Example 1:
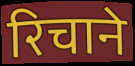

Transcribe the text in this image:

रिचाने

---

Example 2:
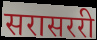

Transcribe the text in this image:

सरासररी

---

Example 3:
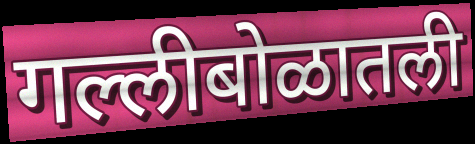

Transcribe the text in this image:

गल्लीबोळातली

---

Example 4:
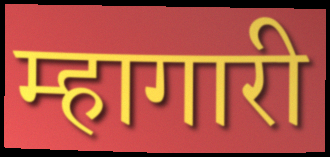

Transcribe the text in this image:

म्हागारी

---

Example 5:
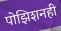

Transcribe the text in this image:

पोझिशनही